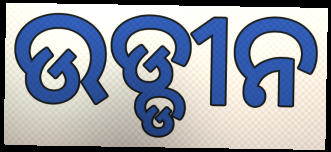
ଉଡ୍ଡୀନ